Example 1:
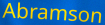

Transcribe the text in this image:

Abramson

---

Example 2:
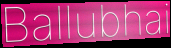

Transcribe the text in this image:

Ballubhai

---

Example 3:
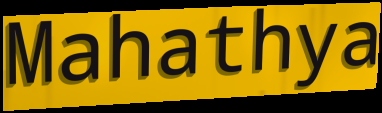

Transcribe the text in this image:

Mahathya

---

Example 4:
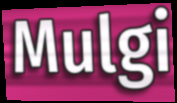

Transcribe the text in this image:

Mulgi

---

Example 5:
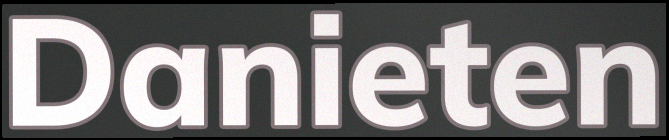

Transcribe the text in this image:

Danieten